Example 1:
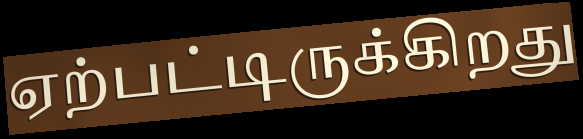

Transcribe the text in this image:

ஏற்பட்டிருக்கிறது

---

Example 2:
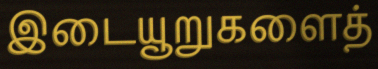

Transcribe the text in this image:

இடையூறுகளைத்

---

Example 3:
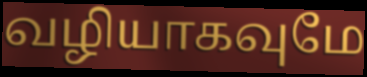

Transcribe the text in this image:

வழியாகவுமே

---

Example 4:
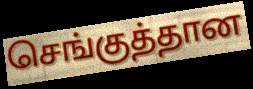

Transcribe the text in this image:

செங்குத்தான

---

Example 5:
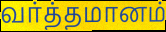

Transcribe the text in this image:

வர்த்தமானம்